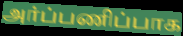
அர்ப்பணிப்பாக